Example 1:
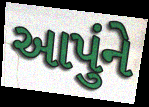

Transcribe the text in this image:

આપુંને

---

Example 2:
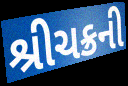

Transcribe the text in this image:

શ્રીચક્રની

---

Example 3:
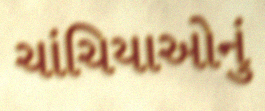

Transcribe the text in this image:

ચાંચિયાઓનું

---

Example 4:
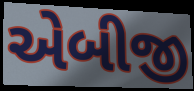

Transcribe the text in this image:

એબીજી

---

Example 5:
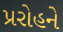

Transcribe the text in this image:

પ્રરોહને